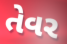
તેવર